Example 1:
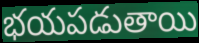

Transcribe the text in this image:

భయపడుతాయి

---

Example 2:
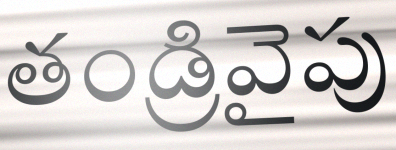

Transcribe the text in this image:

తండ్రివైపు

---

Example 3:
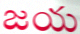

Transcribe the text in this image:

జయ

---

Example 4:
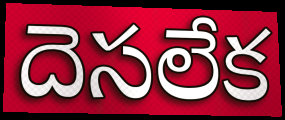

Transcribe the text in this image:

దెసలేక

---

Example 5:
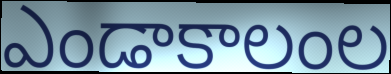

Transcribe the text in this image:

ఎండాకాలంల